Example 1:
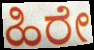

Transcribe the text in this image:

ಹಿರೇ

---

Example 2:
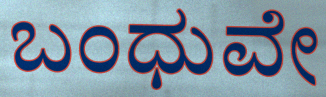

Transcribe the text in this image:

ಬಂಧುವೇ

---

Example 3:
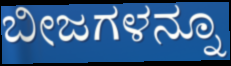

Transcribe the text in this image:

ಬೀಜಗಳನ್ನೂ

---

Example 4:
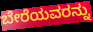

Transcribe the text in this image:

ಬೇರೆಯವರನ್ನು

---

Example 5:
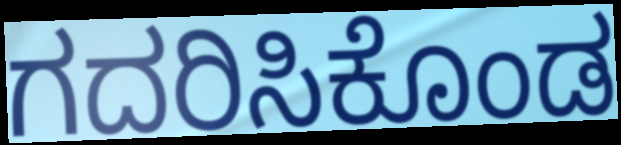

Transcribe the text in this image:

ಗದರಿಸಿಕೊಂಡ